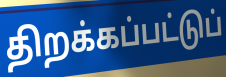
திறக்கப்பட்டுப்